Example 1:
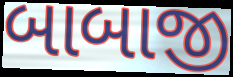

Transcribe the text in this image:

બાબાજી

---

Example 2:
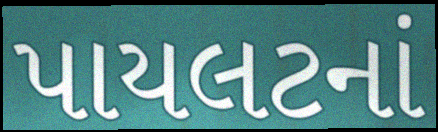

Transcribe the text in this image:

પાયલટનાં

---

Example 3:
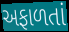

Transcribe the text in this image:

અફાળતાં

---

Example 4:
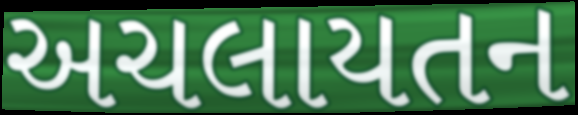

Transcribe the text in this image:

અચલાયતન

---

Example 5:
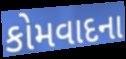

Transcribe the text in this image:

કોમવાદના